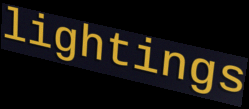
lightings